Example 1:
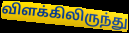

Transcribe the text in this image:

விளக்கிலிருந்து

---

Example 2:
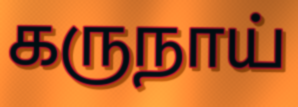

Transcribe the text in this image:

கருநாய்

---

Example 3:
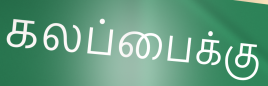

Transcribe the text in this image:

கலப்பைக்கு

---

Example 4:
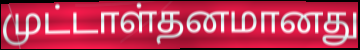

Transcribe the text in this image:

முட்டாள்தனமானது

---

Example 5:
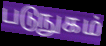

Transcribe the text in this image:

படுநுகம்